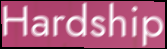
Hardship